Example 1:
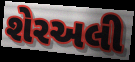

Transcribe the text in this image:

શેરઅલી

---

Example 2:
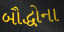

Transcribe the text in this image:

બૌદ્ધોના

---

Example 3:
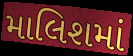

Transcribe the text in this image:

માલિશમાં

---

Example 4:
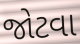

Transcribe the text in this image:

જોટવા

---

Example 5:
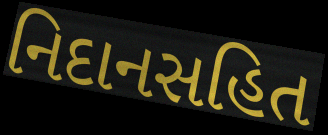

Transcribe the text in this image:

નિદાનસહિત